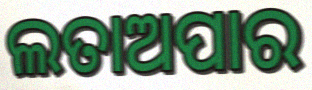
ଲତାଅପାର